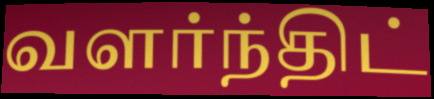
வளர்ந்திட்